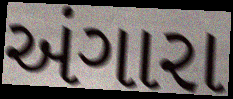
અંગારા